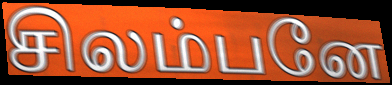
சிலம்பனே